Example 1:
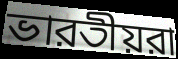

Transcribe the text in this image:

ভারতীয়রা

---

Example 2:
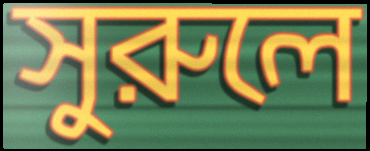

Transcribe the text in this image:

সুরুলে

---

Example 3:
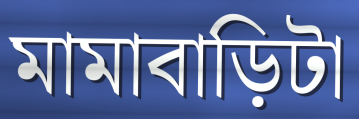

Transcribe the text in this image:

মামাবাড়িটা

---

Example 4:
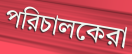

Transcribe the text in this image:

পরিচালকেরা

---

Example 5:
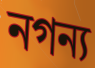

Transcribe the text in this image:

নগন্য